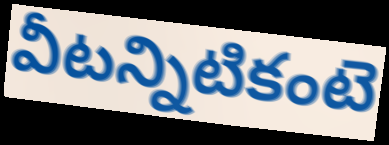
వీటన్నిటికంటె